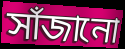
সাঁজানো